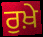
ਰੁਖ਼ੇ